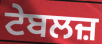
ਟੇਬਲਜ਼